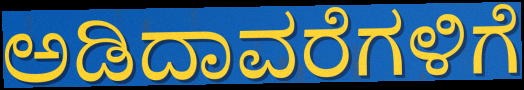
ಅಡಿದಾವರೆಗಳಿಗೆ